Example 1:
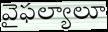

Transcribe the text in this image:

వైఫల్యాలూ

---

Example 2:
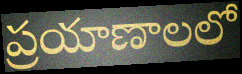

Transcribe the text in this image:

ప్రయాణాలలో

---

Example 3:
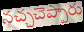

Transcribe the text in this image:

నచ్చచెప్పారు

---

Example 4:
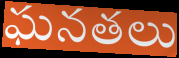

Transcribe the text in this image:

ఘనతలు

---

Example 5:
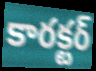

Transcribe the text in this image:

కారక్టర్